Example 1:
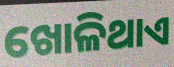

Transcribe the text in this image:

ଖୋଳିଥାଏ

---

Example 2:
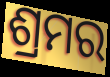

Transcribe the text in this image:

ଶ୍ରମର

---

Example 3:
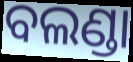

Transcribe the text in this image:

ବଲଣ୍ଡା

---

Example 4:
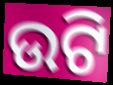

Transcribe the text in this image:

ଉଟି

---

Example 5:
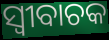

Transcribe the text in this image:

ସ୍ବୀବାଚକ